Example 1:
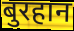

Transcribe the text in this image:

बुरहान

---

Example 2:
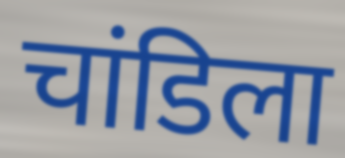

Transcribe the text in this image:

चांडिला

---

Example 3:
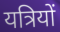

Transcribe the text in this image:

यत्रियों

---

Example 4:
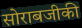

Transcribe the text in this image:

सोराबजीकी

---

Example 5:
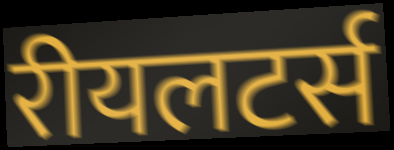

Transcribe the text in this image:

रीयलटर्स